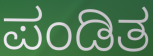
ಪಂಡಿತ